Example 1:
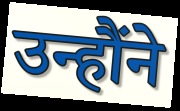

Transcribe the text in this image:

उन्हौंने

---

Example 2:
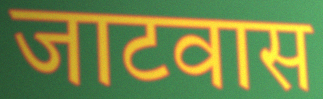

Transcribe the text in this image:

जाटवास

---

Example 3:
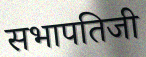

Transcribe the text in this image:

सभापतिजी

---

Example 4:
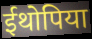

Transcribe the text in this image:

ईथोपिया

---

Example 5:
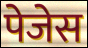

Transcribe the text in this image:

पेजेस